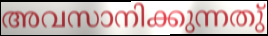
അവസാനിക്കുന്നതു്